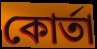
কোর্তা